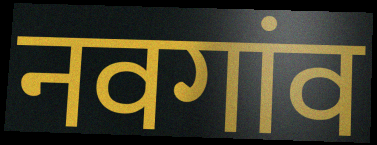
नवगांव